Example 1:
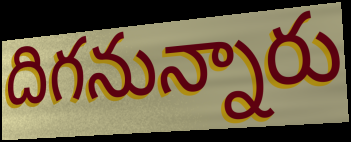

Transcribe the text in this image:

దిగనున్నారు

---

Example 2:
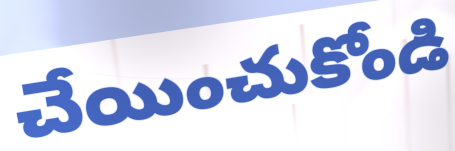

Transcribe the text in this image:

చేయించుకోండి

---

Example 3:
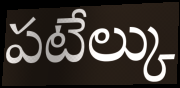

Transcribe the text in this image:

పటేల్కు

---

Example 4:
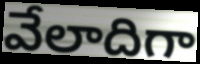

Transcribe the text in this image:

వేలాదిగా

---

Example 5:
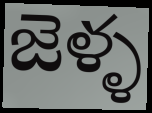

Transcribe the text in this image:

జెళ్ళ